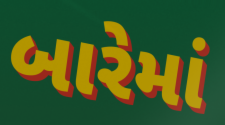
બારેમાં